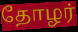
தோழர்